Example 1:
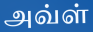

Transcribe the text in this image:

அவ்ள்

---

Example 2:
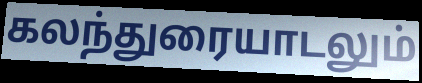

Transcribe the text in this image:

கலந்துரையாடலும்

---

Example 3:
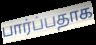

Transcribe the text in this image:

பார்ப்பதாக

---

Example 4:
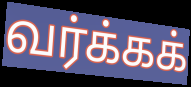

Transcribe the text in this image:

வர்க்கக்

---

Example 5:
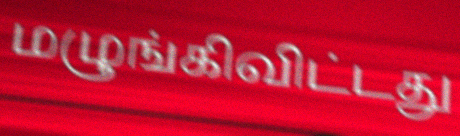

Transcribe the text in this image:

மழுங்கிவிட்டது